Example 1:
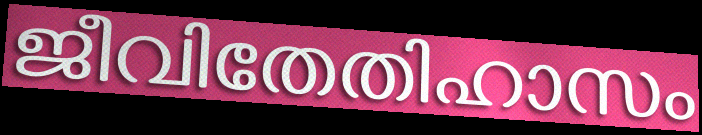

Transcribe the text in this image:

ജീവിതേതിഹാസം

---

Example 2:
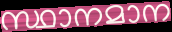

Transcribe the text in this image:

സ്ഥാനമാന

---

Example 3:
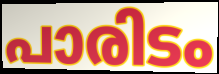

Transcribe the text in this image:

പാരിടം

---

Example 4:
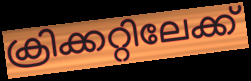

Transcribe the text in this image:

ക്രിക്കറ്റിലേക്ക്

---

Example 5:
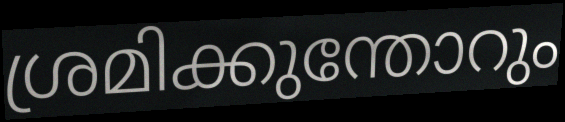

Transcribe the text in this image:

ശ്രമിക്കുന്തോറും